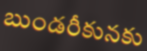
బుండరీకునకు